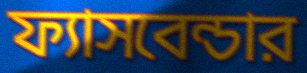
ফ্যাসবেন্ডার